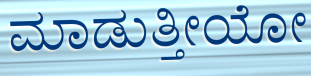
ಮಾಡುತ್ತೀಯೋ